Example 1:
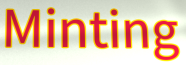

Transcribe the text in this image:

Minting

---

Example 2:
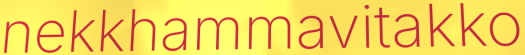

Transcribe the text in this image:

nekkhammavitakko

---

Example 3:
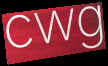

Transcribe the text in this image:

cwg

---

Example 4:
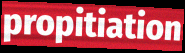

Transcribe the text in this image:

propitiation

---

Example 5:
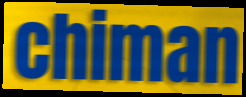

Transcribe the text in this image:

chiman